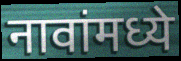
नावांमध्ये